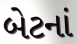
બેટનાં